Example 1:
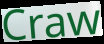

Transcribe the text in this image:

Craw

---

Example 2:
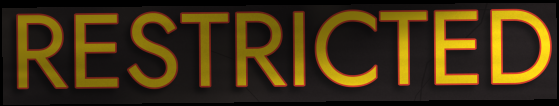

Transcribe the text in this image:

RESTRICTED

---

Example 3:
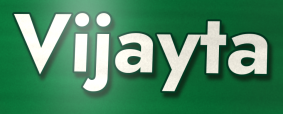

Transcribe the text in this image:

Vijayta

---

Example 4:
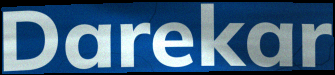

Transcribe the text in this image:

Darekar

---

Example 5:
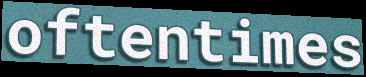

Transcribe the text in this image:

oftentimes